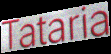
Tataria